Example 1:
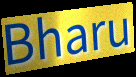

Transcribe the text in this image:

Bharu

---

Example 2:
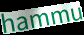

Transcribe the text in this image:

hammu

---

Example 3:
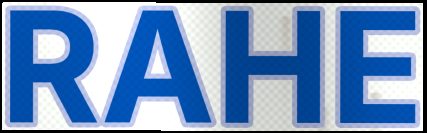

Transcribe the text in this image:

RAHE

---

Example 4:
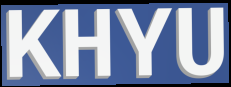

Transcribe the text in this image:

KHYU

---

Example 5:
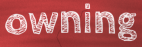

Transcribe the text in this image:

owning